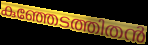
കുഞ്ഞേടത്തിതൻ